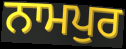
ਨਾਮਪੁਰ